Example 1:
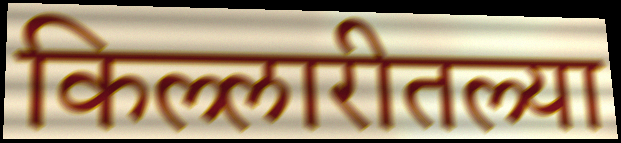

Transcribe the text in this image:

किल्लारीतल्या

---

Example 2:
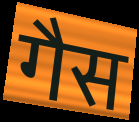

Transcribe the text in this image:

गैस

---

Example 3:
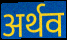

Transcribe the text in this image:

अर्थव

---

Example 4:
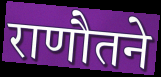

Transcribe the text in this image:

राणौतने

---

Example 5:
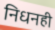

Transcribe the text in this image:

निधनही